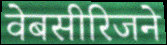
वेबसीरिजने